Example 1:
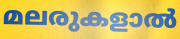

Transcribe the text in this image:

മലരുകളാൽ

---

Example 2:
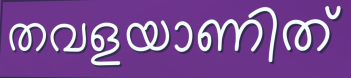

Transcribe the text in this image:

തവളയാണിത്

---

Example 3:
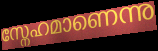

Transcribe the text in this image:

സ്നേഹമാണെന്നു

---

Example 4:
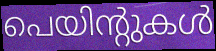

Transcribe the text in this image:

പെയിന്റുകൾ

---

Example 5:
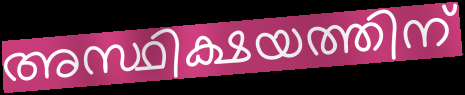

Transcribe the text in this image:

അസ്ഥിക്ഷയത്തിന്